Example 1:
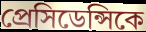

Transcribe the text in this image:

প্রেসিডেন্সিকে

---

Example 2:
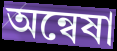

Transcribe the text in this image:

অন্বেষা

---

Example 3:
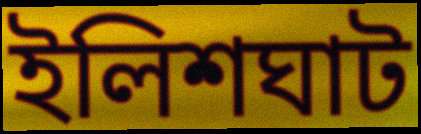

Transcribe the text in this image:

ইলিশঘাট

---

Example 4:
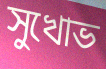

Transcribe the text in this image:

সুখোভ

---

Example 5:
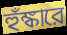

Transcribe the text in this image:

হুঁঙ্কারে